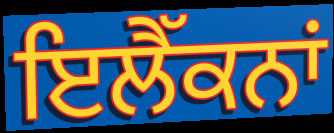
ਇਲੈੱਕਨਾਂ